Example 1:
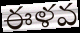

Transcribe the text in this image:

ఈళవ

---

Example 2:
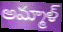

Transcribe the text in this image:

అమ్మాళ్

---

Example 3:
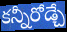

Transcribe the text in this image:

కన్నీరోడ్చే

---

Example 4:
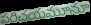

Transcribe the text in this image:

పరిచయమూనూ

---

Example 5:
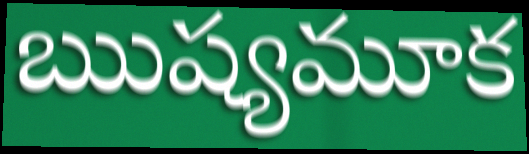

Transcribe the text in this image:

ఋష్యమూక